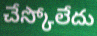
చేస్కోలేదు